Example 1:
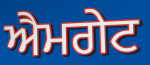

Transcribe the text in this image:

ਐਮਗੇਟ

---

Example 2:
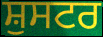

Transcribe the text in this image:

ਸ਼ੁਸਟਰ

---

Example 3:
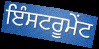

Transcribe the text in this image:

ਇੰਸਟਰੂਮੇਂਟ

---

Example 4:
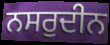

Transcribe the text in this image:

ਨਸਰੁਦੀਨ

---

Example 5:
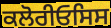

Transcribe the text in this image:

ਕਲੋਰੀਓਸਿਸ